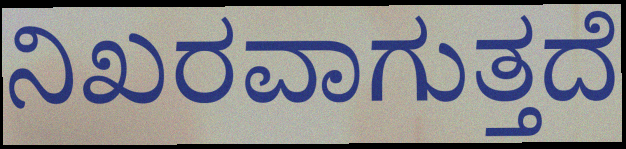
ನಿಖರವಾಗುತ್ತದೆ